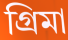
গ্রিমা